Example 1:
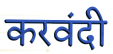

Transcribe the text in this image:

करवंदी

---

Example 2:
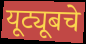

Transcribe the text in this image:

यूट्यूबचे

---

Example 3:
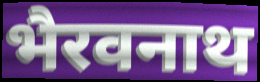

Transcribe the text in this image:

भैरवनाथ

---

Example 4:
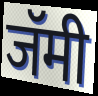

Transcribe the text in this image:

जॅमी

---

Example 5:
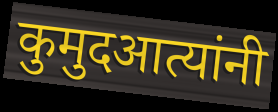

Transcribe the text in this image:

कुमुदआत्यांनी